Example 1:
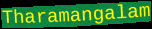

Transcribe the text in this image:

Tharamangalam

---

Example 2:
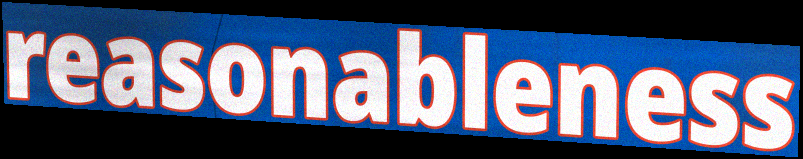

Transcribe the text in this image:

reasonableness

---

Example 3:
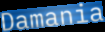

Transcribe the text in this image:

Damania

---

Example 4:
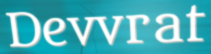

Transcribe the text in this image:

Devvrat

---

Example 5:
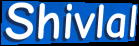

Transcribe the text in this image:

Shivlal